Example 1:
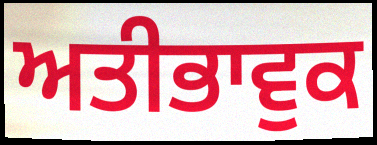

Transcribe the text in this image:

ਅਤੀਭਾਵੁਕ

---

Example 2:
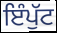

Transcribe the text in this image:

ਇੰਪੁੱਟ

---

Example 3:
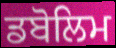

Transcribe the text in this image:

ਡਬੋਲਿਮ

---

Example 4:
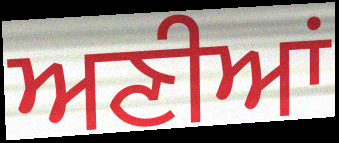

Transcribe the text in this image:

ਅਣੀਆਂ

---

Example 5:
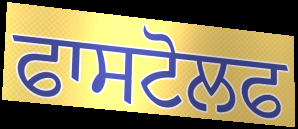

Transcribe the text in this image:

ਫਾਸਟੋਲਫ